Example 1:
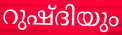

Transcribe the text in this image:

റുഷ്ദിയും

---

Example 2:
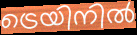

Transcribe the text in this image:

ട്രെയിനിൽ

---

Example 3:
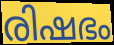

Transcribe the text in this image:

രിഷഭം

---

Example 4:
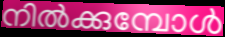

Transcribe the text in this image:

നിൽക്കുമ്പോൾ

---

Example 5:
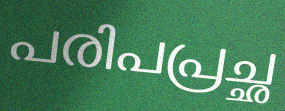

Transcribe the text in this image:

പരിപപ്രച്ഛ